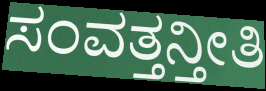
ಸಂವತ್ತನ್ತೀತಿ